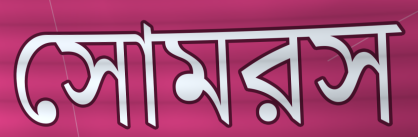
সোমরস